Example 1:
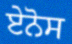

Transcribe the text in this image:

ਏਨੋਸ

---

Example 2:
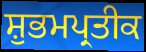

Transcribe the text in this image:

ਸ਼ੁਭਮਪ੍ਰਤੀਕ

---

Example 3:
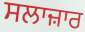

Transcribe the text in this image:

ਸਲਾਜ਼ਾਰ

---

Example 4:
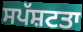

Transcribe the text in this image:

ਸਪੱਸ਼ਟਤਾ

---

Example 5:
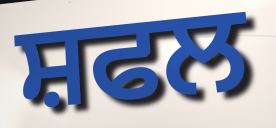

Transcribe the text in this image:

ਸ਼ਫਲ